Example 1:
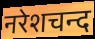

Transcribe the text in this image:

नरेशचन्द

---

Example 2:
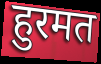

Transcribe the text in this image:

हुरमत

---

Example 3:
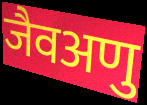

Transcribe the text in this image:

जैवअणु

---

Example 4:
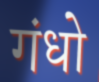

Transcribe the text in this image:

गंधो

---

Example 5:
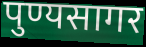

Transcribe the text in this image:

पुण्यसागर